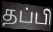
தப்பி